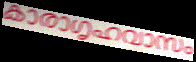
കാരാഗൃഹവാസം